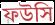
ফউসি